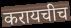
करायचीच